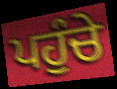
ਪਹੁੰਚੇ